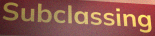
Subclassing